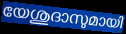
യേശുദാസുമായി